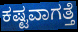
ಕಷ್ಟವಾಗತ್ತೆ